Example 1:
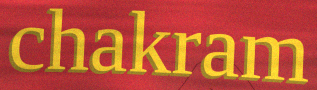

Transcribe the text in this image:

chakram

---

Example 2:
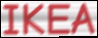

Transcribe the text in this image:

IKEA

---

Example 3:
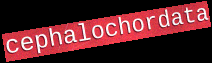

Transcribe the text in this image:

cephalochordata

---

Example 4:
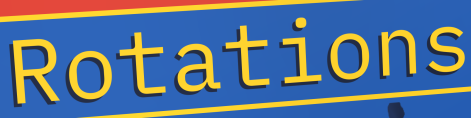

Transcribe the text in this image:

Rotations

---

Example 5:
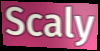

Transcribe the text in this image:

Scaly